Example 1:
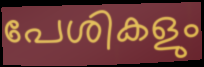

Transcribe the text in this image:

പേശികളും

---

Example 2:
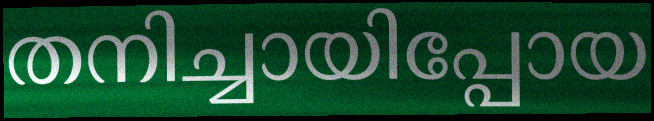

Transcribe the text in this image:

തനിച്ചായിപ്പോയ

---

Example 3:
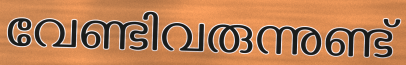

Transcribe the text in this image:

വേണ്ടിവരുന്നുണ്ട്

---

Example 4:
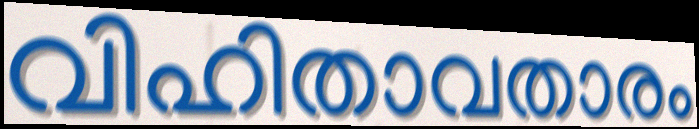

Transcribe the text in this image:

വിഹിതാവതാരം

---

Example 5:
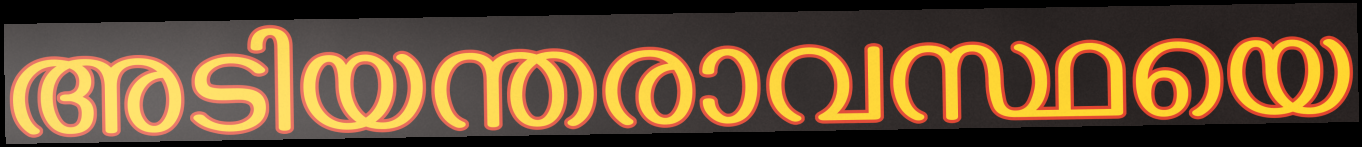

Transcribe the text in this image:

അടിയന്തരാവസ്ഥയെ